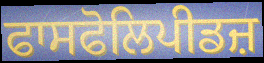
ਫਾਸਫੋਲਿਪੀਡਜ਼